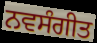
ਨਵਸੰਗੀਤ